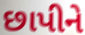
છાપીને